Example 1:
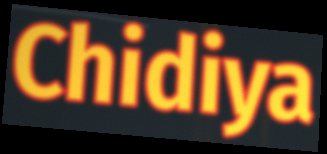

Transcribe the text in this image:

Chidiya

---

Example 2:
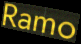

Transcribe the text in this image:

Ramo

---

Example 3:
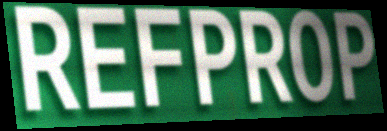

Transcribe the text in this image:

REFPROP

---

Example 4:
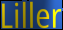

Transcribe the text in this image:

Liller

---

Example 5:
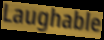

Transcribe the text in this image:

Laughable